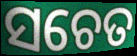
ସଚେତ